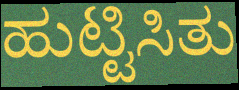
ಹುಟ್ಟಿಸಿತು